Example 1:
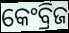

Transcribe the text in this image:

କେଂବ୍ରିଜ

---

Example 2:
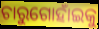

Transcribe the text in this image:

ଚାରୁଗୋହାଁଇକୁ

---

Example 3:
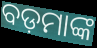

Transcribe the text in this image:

ବଡ଼ମାଙ୍କ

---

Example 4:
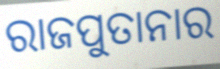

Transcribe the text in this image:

ରାଜପୁତାନାର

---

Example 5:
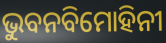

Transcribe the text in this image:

ଭୁବନବିମୋହିନୀ